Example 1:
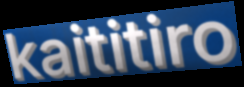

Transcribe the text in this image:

kaititiro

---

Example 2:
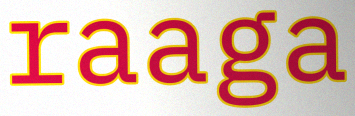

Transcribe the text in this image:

raaga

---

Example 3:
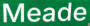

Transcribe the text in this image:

Meade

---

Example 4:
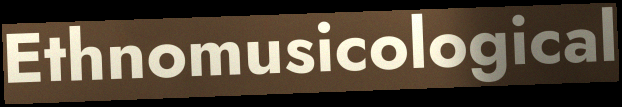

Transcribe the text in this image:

Ethnomusicological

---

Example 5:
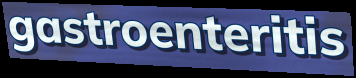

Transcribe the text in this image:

gastroenteritis